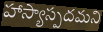
హాస్యాస్పదమని